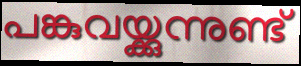
പങ്കുവയ്ക്കുന്നുണ്ട്